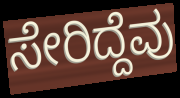
ಸೇರಿದ್ದೆವು